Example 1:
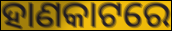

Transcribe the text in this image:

ହାଣକାଟରେ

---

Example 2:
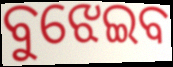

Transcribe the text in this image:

ବୁଝେଇବ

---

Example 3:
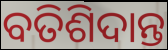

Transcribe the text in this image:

ବତିଶିଦାନ୍ତ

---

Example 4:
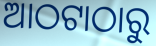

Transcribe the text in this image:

ଆଠଟାଠାରୁ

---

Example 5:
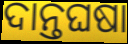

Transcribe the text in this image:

ଦାନ୍ତଘଷା